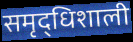
समृद्धिशाली